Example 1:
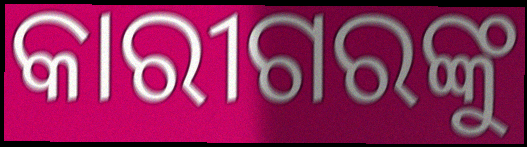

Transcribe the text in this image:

କାରୀଗରଙ୍କୁ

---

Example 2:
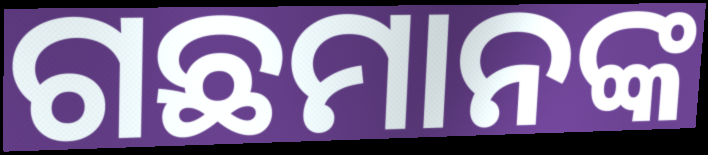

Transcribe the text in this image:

ଗଛମାନଙ୍କ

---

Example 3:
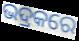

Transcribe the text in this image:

ଭଦ୍ରକରେ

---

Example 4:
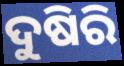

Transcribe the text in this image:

ଦୁଷିରି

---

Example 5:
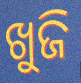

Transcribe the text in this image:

ଖୁଜି